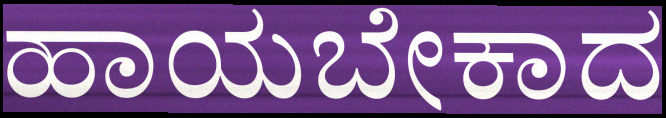
ಹಾಯಬೇಕಾದ